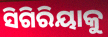
ସିଗିରିୟାକୁ